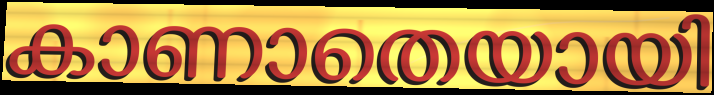
കാണാതെയായി